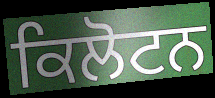
ਕਿਲੋਟਨ